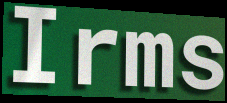
Irms